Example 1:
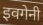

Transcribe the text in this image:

इवगेनी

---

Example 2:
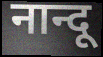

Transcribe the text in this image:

नान्दू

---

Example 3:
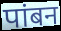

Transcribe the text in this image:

पांबन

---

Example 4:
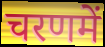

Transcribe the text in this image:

चरणमें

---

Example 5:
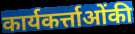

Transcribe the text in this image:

कार्यकर्त्ताओंकी